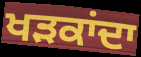
ਖੜਕਾਂਦਾ